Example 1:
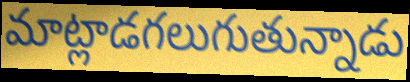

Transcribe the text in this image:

మాట్లాడగలుగుతున్నాడు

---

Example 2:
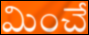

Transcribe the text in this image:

మించే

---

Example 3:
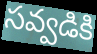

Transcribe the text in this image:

సవ్వడికి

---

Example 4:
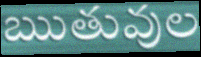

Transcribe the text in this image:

ఋతువుల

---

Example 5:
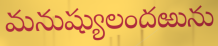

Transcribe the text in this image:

మనుష్యులందఱును